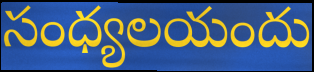
సంధ్యలయందు